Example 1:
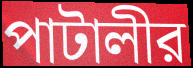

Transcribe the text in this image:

পাটালীর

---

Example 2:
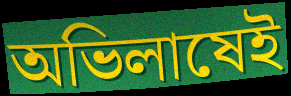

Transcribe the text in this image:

অভিলাষেই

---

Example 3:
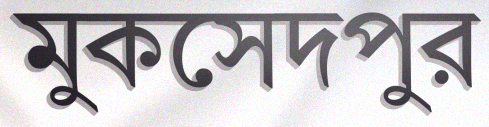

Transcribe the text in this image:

মুকসেদপুর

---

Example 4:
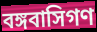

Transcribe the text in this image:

বঙ্গবাসিগণ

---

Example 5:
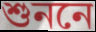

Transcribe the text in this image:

শুননে